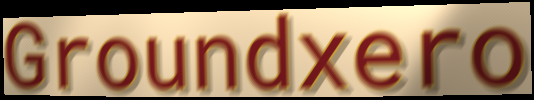
Groundxero